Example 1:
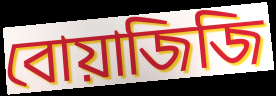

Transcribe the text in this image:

বোয়াজিজি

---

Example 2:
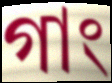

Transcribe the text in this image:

গাং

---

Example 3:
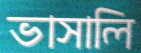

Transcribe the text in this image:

ভাসালি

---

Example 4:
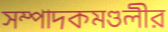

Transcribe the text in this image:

সম্পাদকমণ্ডলীর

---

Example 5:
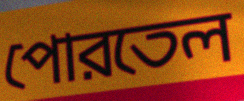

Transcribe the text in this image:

পোরতেল